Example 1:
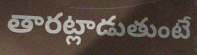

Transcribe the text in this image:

తారట్లాడుతుంటే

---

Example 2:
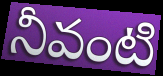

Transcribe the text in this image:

నీవంటి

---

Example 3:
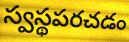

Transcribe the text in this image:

స్వస్థపరచడం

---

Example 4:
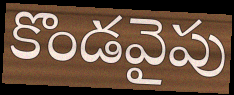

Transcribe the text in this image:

కొండవైపు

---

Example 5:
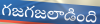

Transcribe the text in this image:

గజగజలాడింది